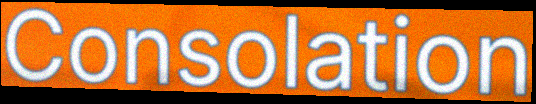
Consolation